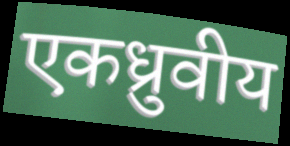
एकध्रुवीय